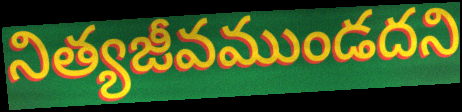
నిత్యజీవముండదని